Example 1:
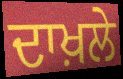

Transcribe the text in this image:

ਦਾਖ਼ਲੇ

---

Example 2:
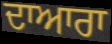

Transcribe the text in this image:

ਦਾਆਰਾ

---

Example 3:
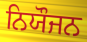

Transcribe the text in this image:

ਨਿਯੌਜਨ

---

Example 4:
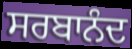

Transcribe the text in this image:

ਸਰਬਾਨੰਦ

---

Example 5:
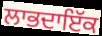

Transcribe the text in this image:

ਲਾਭਦਾਇੱਕ